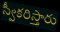
స్వీకరిస్తారు